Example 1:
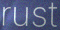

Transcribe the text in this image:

rust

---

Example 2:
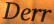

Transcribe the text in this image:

Derr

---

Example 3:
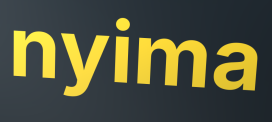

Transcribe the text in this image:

nyima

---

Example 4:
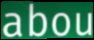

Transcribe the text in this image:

abou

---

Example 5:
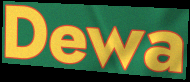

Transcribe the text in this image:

Dewa